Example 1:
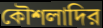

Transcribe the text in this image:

কৌশলাদির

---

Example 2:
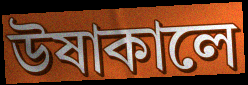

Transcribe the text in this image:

উষাকালে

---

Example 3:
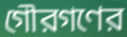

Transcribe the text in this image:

গৌরগণের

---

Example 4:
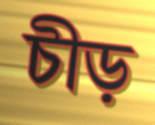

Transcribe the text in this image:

চীড়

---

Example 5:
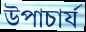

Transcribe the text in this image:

উপাচার্য